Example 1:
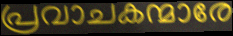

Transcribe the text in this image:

പ്രവാചകന്മാരേ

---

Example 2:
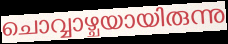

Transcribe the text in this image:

ചൊവ്വാഴ്ചയായിരുന്നു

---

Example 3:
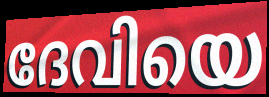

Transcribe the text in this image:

ദേവിയെ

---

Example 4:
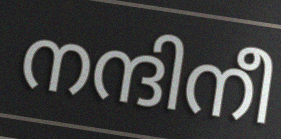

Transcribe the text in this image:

നന്ദിനീ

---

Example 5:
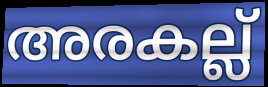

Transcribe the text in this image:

അരകല്ല്